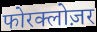
फोरक्लोज़र